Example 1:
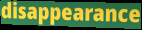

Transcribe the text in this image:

disappearance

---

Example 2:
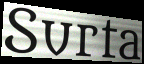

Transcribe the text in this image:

Surta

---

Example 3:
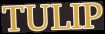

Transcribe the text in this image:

TULIP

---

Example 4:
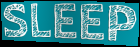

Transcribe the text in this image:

SLEEP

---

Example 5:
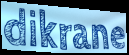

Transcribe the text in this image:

dikrane